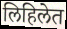
लिहिलेत